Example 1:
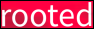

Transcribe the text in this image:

rooted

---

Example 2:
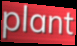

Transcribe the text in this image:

plant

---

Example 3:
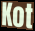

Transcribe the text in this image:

Kot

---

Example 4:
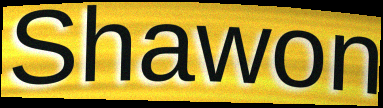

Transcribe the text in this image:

Shawon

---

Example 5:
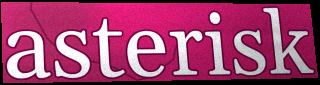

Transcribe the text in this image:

asterisk